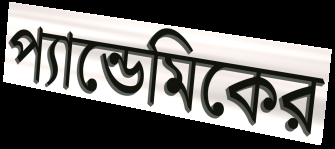
প্যান্ডেমিকের